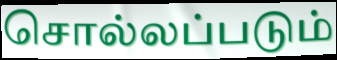
சொல்லப்படும்